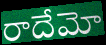
రాదేమో